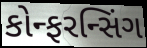
કોન્ફરન્સિંગ